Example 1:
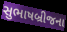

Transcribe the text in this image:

સુભાષબ્રીજના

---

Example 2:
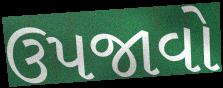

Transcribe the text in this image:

ઉપજાવો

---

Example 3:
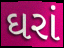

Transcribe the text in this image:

ઘરાં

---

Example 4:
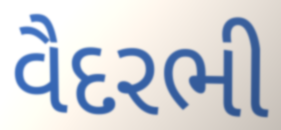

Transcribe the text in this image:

વૈદરભી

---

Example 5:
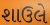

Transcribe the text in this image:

શાઉલે